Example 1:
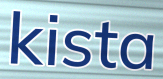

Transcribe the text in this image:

kista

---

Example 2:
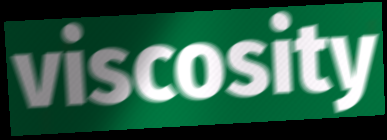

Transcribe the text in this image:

viscosity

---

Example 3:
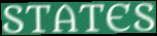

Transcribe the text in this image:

STATES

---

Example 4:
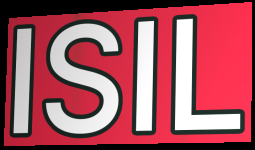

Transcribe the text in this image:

ISIL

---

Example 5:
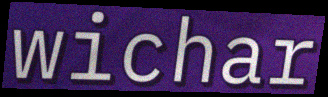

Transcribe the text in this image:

wichar